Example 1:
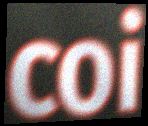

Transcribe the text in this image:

coi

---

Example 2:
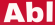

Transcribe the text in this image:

Abl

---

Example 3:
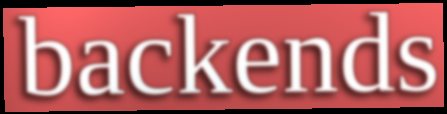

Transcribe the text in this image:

backends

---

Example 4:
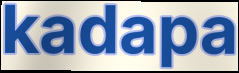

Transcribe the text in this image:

kadapa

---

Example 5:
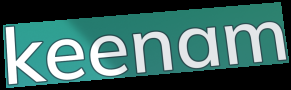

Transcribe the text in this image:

keenam